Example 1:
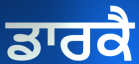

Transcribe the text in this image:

ਡਾਰਕੈ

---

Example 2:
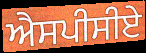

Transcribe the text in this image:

ਐਸਪੀਸੀਏ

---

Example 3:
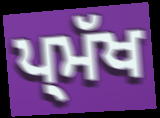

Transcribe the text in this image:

ਪ੍ਮੱਖ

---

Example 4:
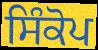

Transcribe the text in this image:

ਸਿੰਕੋਪ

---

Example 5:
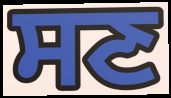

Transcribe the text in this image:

ਸਣ